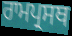
ਰਾਮਪ੍ਰਸਥ